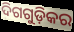
ଦିଗଗୁଡ଼ିକର